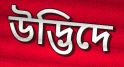
উদ্ভিদে